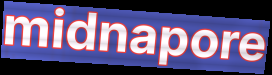
midnapore